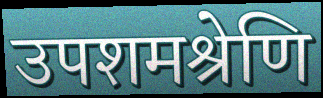
उपशमश्रेणि